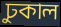
ঢুকাল